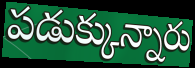
పడుక్కున్నారు